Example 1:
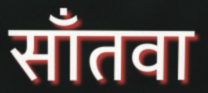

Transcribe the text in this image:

साँतवा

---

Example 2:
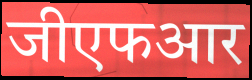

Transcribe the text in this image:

जीएफआर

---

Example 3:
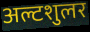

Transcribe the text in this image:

अल्टशुलर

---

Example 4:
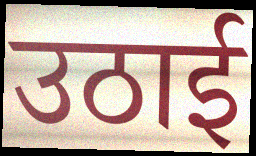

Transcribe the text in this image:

उठाई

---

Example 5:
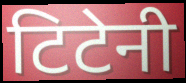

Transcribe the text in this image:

टिटेनी